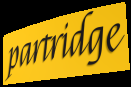
partridge